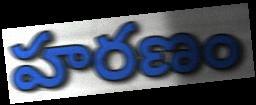
హరణం